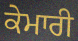
ਕੇਮਾਰੀ